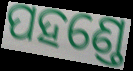
ପହଣ୍ଡେ